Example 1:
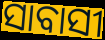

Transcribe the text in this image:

ସାବାସୀ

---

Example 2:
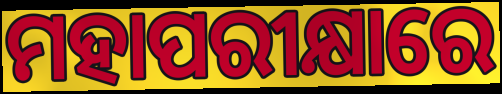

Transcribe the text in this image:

ମହାପରୀକ୍ଷାରେ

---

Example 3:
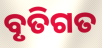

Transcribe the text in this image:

ବୃତିଗତ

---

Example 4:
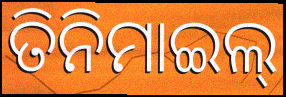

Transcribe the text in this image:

ତିନିମାଇଲ୍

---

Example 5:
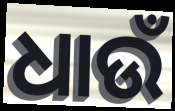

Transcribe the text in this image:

ଧାଉଁ